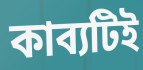
কাব্যটিই